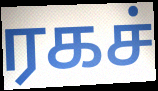
ரகச்